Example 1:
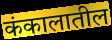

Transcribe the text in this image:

कंकालातील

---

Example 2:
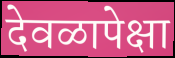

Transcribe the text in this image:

देवळापेक्षा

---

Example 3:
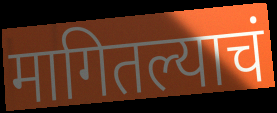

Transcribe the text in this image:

मागितल्याचं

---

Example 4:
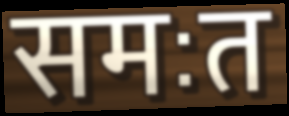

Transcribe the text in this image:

समःत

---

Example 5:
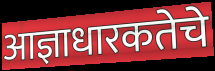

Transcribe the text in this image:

आज्ञाधारकतेचे